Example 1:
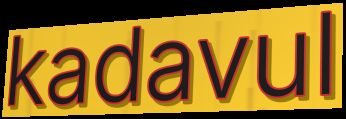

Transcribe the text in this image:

kadavul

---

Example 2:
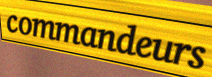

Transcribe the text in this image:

commandeurs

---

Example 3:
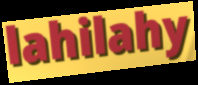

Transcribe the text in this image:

lahilahy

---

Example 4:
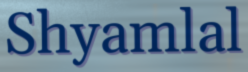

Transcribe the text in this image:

Shyamlal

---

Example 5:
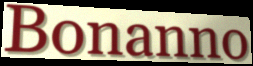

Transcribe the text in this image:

Bonanno